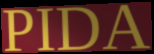
PIDA